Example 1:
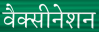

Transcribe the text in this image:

वैक्सीनेशन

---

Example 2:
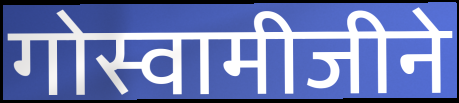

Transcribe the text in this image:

गोस्वामीजीने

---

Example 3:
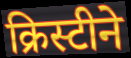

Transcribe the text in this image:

क्रिस्टीने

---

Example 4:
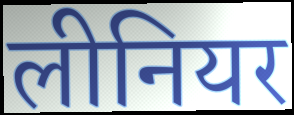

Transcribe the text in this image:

लीनियर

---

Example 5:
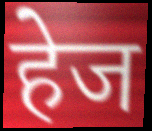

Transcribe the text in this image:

हेज